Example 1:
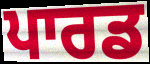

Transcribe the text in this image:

ਪਾਰਡ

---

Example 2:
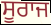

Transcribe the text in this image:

ਸੂਰਾਜ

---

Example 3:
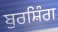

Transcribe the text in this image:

ਬੁਰਸ਼ਿੰਗ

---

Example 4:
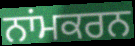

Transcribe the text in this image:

ਨਾਂਮਕਰਨ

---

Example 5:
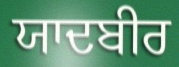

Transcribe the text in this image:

ਯਾਦਬੀਰ